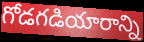
గోడగడియారాన్ని